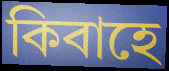
কিবাহে